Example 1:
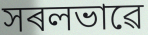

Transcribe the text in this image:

সৰলভাৱে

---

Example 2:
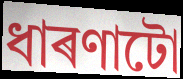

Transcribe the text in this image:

ধাৰণাটো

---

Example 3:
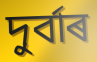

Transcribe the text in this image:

দুৰ্বাৰ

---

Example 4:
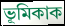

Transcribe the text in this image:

ভূমিকাক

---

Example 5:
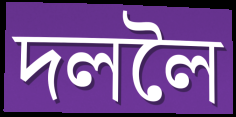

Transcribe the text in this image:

দললৈ